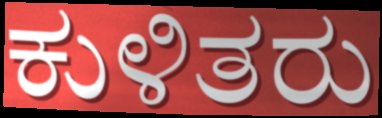
ಕುಳಿತರು